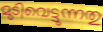
മുടിവെട്ടുന്നതു